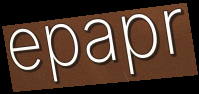
epapr